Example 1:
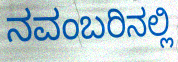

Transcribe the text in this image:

ನವಂಬರಿನಲ್ಲಿ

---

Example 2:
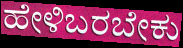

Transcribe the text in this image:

ಹೇಳಿಬರಬೇಕು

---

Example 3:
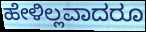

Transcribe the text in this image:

ಹೇಳಿಲ್ಲವಾದರೂ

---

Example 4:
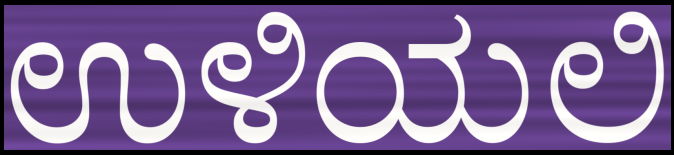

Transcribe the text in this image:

ಉಳಿಯಲಿ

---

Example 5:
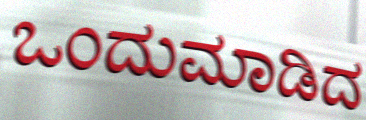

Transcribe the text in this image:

ಒಂದುಮಾಡಿದ